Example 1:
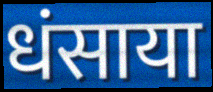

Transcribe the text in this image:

धंसाया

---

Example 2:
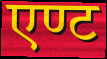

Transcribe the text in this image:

एण्ट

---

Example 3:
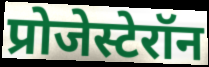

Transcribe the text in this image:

प्रोजेस्टेरॉन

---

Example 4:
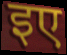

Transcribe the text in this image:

इए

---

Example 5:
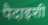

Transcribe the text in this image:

पैदाइशी